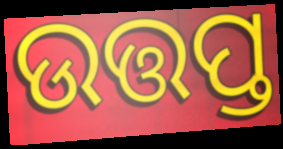
ଉତ୍ତପ୍ତ